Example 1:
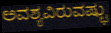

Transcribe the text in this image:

ಅವಶ್ಯವಿರುವಷ್ಟು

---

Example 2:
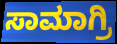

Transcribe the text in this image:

ಸಾಮಾಗ್ರಿ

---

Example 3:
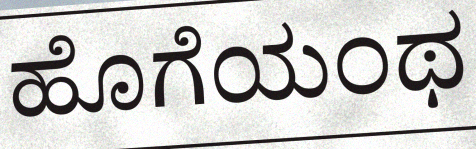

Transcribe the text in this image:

ಹೊಗೆಯಂಥ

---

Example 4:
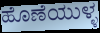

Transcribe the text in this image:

ಹೊಣೆಯುಳ್ಳ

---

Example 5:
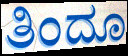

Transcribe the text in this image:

ತಿಂದೂ